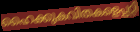
ഹൈക്കുകവിതകളെപ്പറ്റി